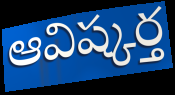
ఆవిష్కర్త